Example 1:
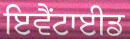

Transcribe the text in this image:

ਇਵੈਂਟਾਈਡ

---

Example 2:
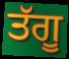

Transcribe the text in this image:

ਤੱਗੂ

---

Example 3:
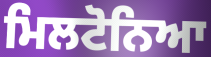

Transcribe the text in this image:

ਮਿਲਟੋਨਿਆ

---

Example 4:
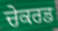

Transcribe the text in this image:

ਚੇਕਰਡ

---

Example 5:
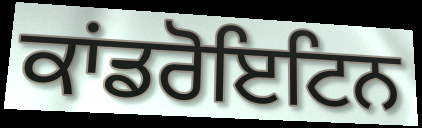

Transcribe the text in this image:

ਕਾਂਡਰੋਇਟਿਨ